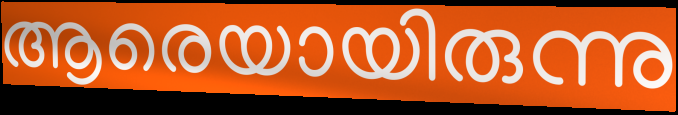
ആരെയായിരുന്നു